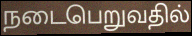
நடைபெறுவதில்